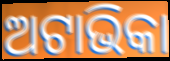
ଅଟାଭିକା